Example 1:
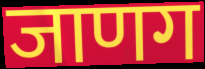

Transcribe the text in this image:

जाणग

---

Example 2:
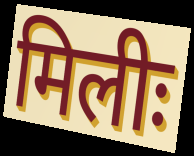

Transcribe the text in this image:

मिलीः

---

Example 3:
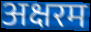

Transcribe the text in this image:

अक्षरम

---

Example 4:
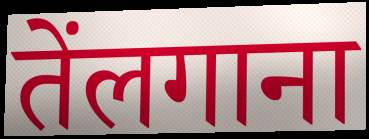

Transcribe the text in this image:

तेंलगाना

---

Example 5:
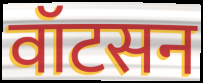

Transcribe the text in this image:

वॉटसन